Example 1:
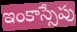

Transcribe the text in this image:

ఇంకాస్సేపు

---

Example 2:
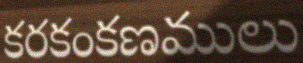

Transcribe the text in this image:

కరకంకణములు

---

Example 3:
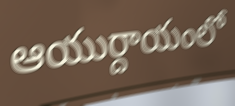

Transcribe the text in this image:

ఆయుర్దాయంలో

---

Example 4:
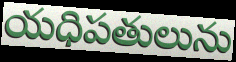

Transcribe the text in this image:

యధిపతులును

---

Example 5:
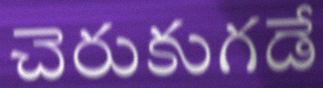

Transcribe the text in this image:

చెరుకుగడే